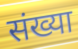
संख्या